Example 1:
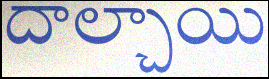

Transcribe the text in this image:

దాల్చాయి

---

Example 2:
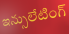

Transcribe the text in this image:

ఇన్సులేటింగ్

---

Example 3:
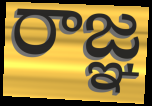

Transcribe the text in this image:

రాజ్ఞ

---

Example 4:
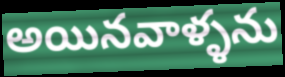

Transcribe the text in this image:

అయినవాళ్ళను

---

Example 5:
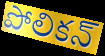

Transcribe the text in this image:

పోలికన్